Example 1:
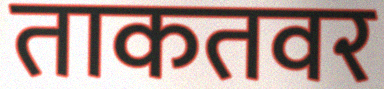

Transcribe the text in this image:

ताकतवर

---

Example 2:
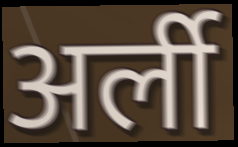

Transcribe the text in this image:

अर्ली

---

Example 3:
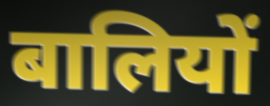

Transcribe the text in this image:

बालियों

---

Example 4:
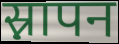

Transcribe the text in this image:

स्नापन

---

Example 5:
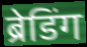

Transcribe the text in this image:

ब्रेडिंग